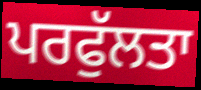
ਪਰਫੁੱਲਤਾ